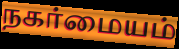
நகர்மையம்